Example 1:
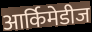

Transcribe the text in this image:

आर्किमेडीज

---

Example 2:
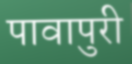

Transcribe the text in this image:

पावापुरी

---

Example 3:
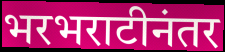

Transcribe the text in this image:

भरभराटीनंतर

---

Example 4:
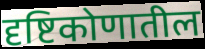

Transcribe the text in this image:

दृष्टिकोणातील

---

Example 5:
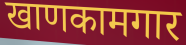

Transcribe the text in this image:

खाणकामगार